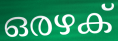
ഒരഴക്